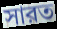
সারত